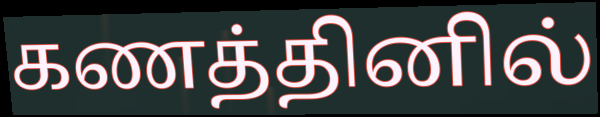
கணத்தினில்